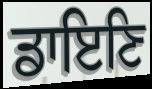
ਡਾਇਣਿ